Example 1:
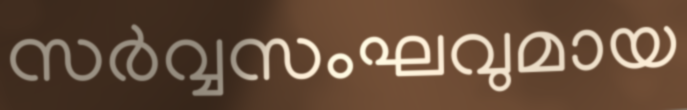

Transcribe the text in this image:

സർവ്വസംഘവുമായ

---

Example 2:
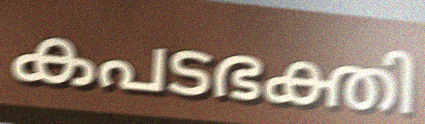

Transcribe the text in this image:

കപടഭക്തി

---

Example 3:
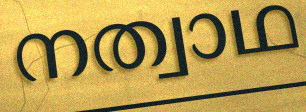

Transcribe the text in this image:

നത്വാഥ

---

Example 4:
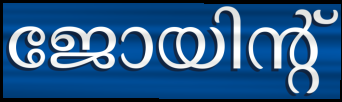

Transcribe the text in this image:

ജോയിന്റ്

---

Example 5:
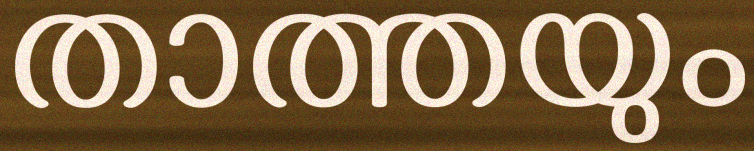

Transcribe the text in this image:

താത്തയും